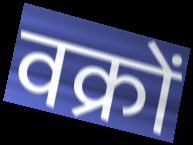
वक्रों